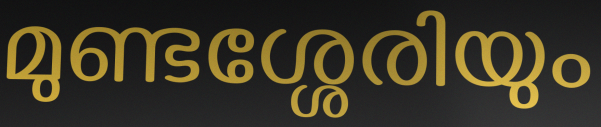
മുണ്ടശ്ശേരിയും